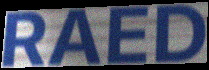
RAED